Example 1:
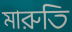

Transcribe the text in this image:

মাৰুতি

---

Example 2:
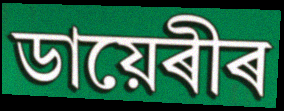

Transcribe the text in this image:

ডায়েৰীৰ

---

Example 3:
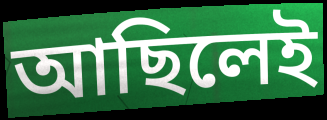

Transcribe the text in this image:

আছিলেই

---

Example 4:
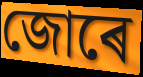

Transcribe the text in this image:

জোৰে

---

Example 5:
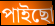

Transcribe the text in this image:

পাইছো